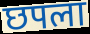
छपला